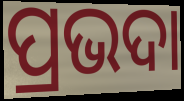
ପ୍ରଭଦା